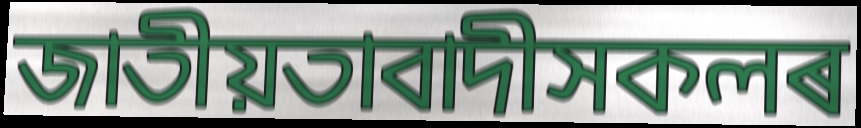
জাতীয়তাবাদীসকলৰ